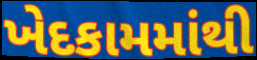
ખેદકામમાંથી